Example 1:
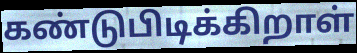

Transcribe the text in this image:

கண்டுபிடிக்கிறாள்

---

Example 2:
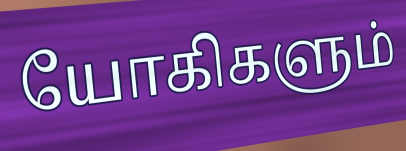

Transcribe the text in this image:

யோகிகளும்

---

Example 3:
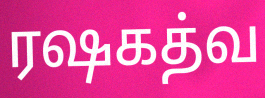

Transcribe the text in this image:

ரஷகத்வ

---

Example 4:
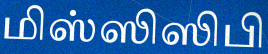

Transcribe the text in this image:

மிஸ்ஸிஸிபி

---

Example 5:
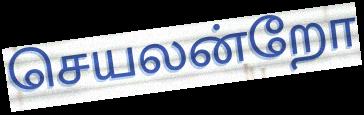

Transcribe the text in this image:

செயலன்றோ